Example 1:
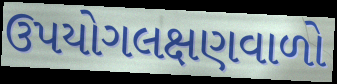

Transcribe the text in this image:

ઉપયોગલક્ષણવાળો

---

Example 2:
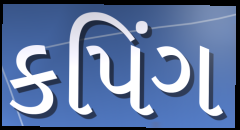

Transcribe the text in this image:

કપિંગ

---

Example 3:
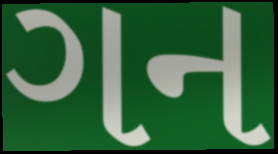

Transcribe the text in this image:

ગન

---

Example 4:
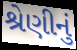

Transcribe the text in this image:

શ્રેણીનું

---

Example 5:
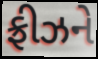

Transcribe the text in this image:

ફ્રીઝને